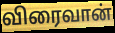
விரைவான்